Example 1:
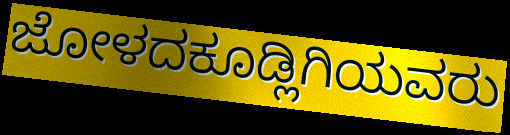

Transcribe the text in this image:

ಜೋಳದಕೂಡ್ಲಿಗಿಯವರು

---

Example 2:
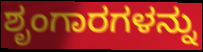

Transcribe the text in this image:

ಶೃಂಗಾರಗಳನ್ನು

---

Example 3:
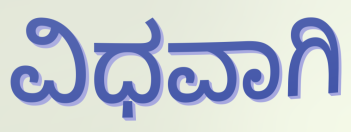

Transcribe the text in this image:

ವಿಧವಾಗಿ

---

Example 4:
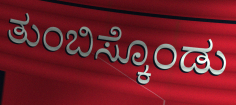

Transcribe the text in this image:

ತುಂಬಿಸ್ಕೊಂಡು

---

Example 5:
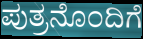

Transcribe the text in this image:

ಪುತ್ರನೊಂದಿಗೆ